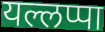
यल्लप्पा